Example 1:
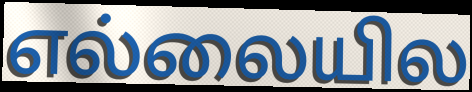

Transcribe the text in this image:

எல்லையில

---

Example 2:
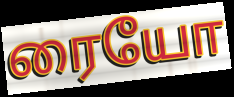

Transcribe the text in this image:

ரையோ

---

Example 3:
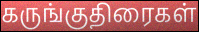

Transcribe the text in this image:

கருங்குதிரைகள்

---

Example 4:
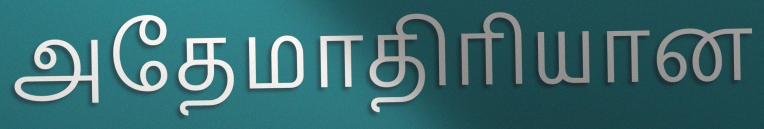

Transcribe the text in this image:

அதேமாதிரியான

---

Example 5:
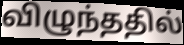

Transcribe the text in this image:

விழுந்ததில்